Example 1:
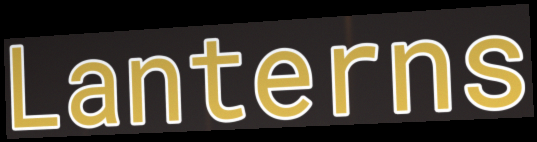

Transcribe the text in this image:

Lanterns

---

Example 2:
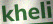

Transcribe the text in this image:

kheli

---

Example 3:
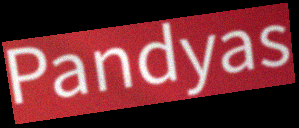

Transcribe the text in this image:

Pandyas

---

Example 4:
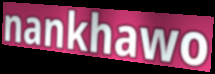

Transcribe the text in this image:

nankhawo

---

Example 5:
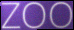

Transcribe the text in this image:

ZOO